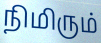
நிமிரும்